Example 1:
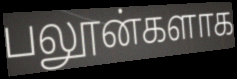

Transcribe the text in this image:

பலூன்களாக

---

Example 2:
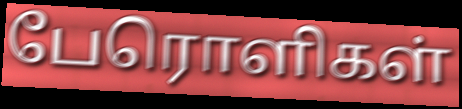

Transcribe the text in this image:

பேரொளிகள்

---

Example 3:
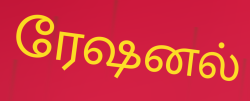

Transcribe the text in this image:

ரேஷனல்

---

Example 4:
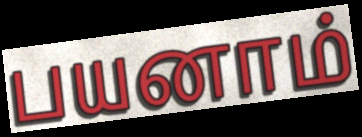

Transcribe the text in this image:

பயனாம்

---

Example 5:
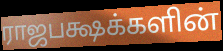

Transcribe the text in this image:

ராஜபக்ஷக்களின்